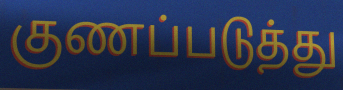
குணப்படுத்து